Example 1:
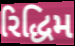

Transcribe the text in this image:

રિદ્ધિમ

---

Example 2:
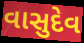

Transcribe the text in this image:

વાસુદેવ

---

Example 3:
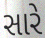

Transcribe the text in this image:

સારે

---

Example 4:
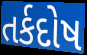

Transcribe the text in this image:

તર્કદોષ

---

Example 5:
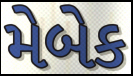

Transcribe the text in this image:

મેબેક